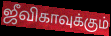
ஜீவிகாவுக்கும்